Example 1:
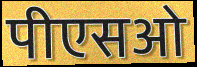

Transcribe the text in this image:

पीएसओ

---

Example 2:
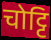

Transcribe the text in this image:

चोट्टि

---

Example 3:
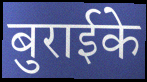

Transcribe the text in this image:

बुराईके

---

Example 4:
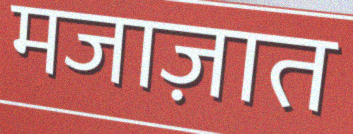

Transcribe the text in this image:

मजाज़ात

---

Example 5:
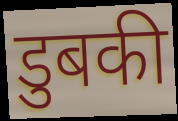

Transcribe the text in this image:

डुबकी